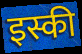
इस्की